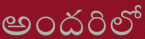
అందరిలో